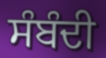
ਸੰਬੰਦੀ